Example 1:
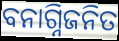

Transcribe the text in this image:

ବନାଗ୍ନିଜନିତ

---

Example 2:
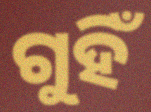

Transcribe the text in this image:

ଗୁହିଁ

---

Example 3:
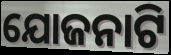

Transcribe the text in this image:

ଯୋଜନାଟି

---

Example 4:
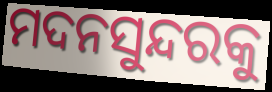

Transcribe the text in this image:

ମଦନସୁନ୍ଦରକୁ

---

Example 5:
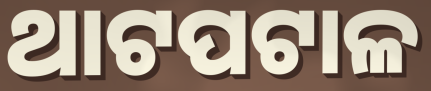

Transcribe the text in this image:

ଥାଟପଟାଳ